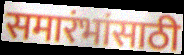
समारंभांसाठी